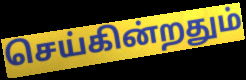
செய்கின்றதும்